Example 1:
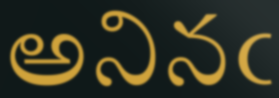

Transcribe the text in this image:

అనినఁ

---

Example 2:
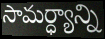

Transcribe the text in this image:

సామర్ధ్యాన్ని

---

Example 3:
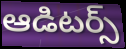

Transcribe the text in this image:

ఆడిటర్స్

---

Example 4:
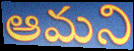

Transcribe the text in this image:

ఆమని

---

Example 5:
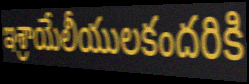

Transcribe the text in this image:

ఇశ్రాయేలీయులకందరికి